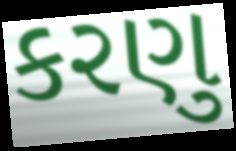
કરણુ